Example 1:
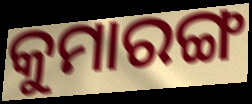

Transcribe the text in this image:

କୁମାରଙ୍ଗ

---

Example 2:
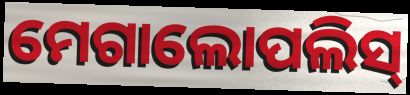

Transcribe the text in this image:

ମେଗାଲୋପଲିସ୍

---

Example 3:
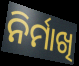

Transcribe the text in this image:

ନିର୍ମାଖି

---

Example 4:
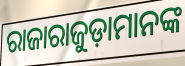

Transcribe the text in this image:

ରାଜାରାଜୁଡ଼ାମାନଙ୍କ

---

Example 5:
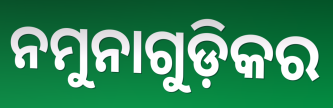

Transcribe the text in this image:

ନମୁନାଗୁଡ଼ିକର